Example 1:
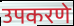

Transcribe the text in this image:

उपकरणे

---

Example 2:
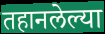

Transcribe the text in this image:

तहानलेल्या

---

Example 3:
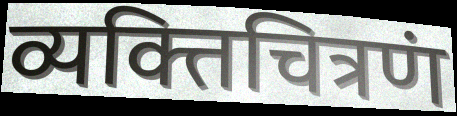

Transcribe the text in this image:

व्यक्तिचित्रणं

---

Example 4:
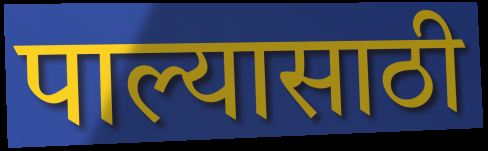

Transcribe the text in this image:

पाल्यासाठी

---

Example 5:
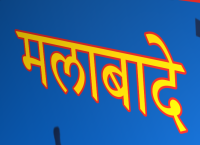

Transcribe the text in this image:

मलाबादे